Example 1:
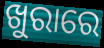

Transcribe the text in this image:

ଖୁରାରେ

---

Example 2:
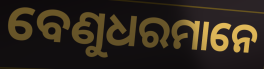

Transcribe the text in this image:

ବେଣୁଧରମାନେ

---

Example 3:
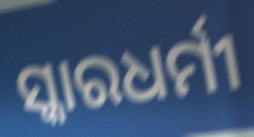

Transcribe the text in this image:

ସ୍କାରଧର୍ମୀ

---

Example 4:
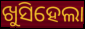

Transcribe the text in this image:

ଖୁସିହେଲା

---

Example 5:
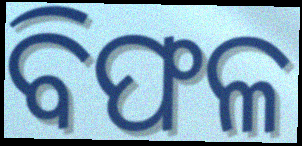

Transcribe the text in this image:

ବିଫଳ